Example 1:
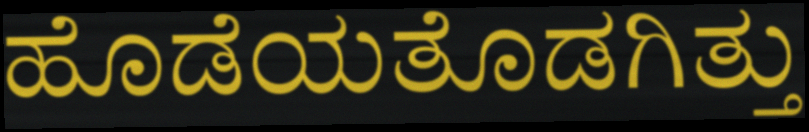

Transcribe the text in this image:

ಹೊಡೆಯತೊಡಗಿತ್ತು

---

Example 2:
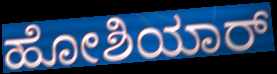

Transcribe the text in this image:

ಹೋಶಿಯಾರ್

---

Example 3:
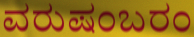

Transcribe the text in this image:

ವರುಷಂಬರಂ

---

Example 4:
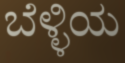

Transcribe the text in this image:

ಬೆಳ್ಳಿಯ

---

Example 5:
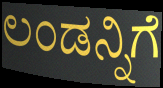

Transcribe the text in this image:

ಲಂಡನ್ನಿಗೆ